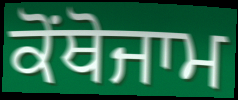
ਕੋਂਥੋਜਾਮ